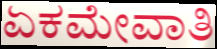
ಏಕಮೇವಾತಿ